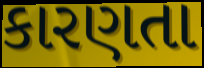
કારણતા